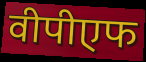
वीपीएफ